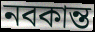
নবকান্ত